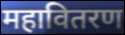
महावितरण